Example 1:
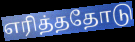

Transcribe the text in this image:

எரித்ததோடு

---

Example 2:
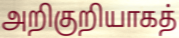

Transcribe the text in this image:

அறிகுறியாகத்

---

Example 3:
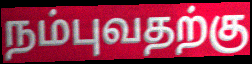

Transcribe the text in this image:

நம்புவதற்கு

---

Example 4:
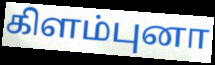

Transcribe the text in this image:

கிளம்புனா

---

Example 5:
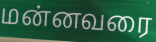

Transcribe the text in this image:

மன்னவரை